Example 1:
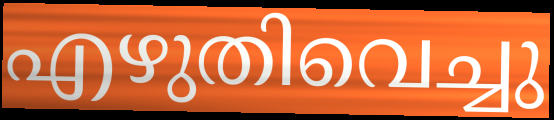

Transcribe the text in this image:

എഴുതിവെച്ചു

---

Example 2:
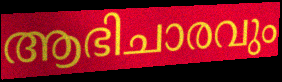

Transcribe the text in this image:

ആഭിചാരവും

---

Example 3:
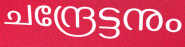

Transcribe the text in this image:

ചന്ദ്രേട്ടനും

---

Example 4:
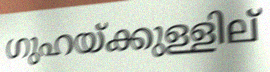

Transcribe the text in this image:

ഗുഹയ്ക്കുള്ളില്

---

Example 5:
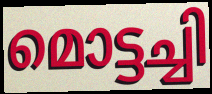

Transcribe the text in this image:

മൊട്ടച്ചി